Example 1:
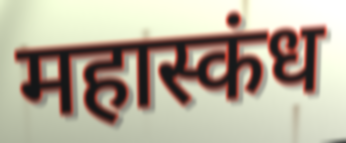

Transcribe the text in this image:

महास्कंध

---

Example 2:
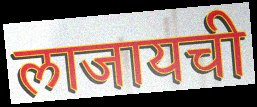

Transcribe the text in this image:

लाजायची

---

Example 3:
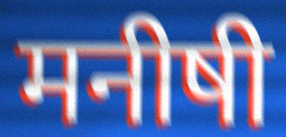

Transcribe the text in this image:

मनीषी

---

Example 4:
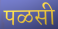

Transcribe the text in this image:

पळसी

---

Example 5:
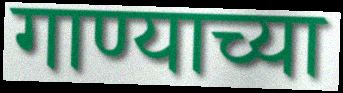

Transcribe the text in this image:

गाण्याच्या